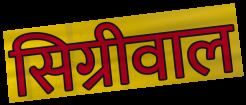
सिग्रीवाल